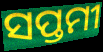
ସପ୍ତମୀ